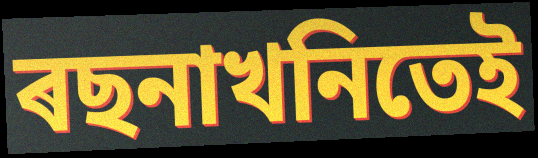
ৰছনাখনিতেই